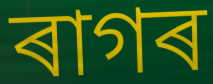
ৰাগৰ